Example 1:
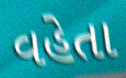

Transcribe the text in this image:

વહેતા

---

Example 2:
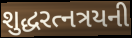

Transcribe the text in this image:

શુદ્ધરત્નત્રયની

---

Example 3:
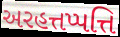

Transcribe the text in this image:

અરહત્તપ્પત્તિ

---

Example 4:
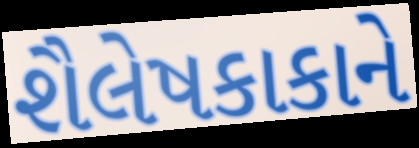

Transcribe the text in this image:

શૈલેષકાકાને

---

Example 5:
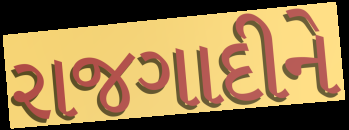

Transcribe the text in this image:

રાજગાદીને